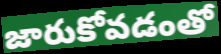
జారుకోవడంతో